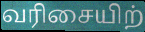
வரிசையிற்